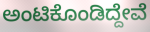
ಅಂಟಿಕೊಂಡಿದ್ದೇವೆ